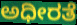
ಅಧೀರತೆ